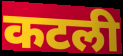
कटली